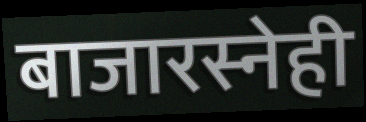
बाजारस्नेही